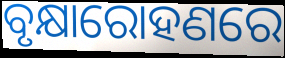
ବୃକ୍ଷାରୋହଣରେ